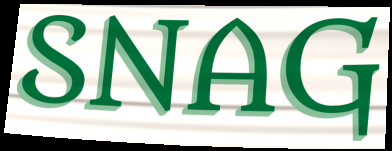
SNAG